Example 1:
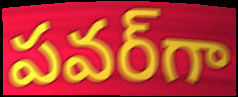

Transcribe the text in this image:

పవర్‌గా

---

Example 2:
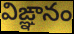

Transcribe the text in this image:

విఙ్ఞానం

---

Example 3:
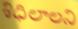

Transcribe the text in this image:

శిధిలాలని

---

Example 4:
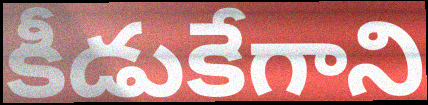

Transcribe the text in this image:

కీడుకేగాని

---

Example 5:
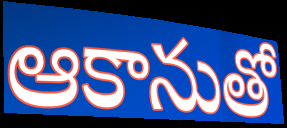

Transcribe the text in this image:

ఆకానుతో